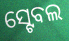
ସ୍ଟେବଲ